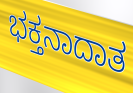
ಭಕ್ತನಾದಾತ